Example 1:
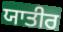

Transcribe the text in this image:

ਯਾਤੀਰ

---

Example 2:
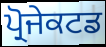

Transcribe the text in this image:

ਪ੍ਰੋਜੇਕਟਡ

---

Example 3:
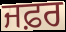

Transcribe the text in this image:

ਜਫ਼ਰ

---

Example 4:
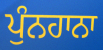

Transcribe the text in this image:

ਪੁੰਨਹਾਨਾ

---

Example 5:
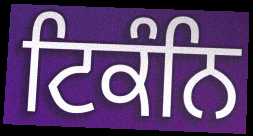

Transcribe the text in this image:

ਟਿਕੰਨਿ